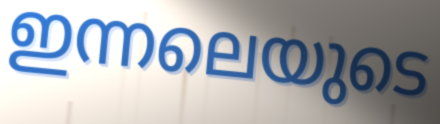
ഇന്നലെയുടെ